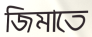
জিমাতে